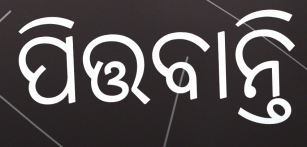
ପିତ୍ତବାନ୍ତି